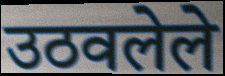
उठवलेले